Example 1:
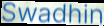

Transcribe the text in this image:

Swadhin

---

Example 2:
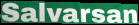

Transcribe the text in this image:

Salvarsan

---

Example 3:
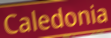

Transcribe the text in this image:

Caledonia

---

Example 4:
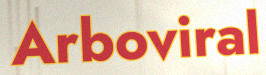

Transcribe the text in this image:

Arboviral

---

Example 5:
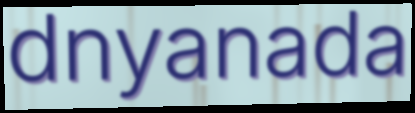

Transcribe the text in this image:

dnyanada